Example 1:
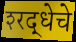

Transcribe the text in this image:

श्रद्धेचे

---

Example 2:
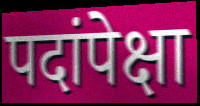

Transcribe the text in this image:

पदांपेक्षा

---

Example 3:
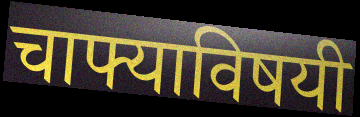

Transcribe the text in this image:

चाफ्याविषयी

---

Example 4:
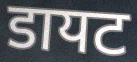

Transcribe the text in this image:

डायट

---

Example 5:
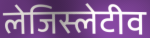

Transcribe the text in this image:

लेजिस्लेटीव